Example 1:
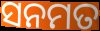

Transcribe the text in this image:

ସନମତ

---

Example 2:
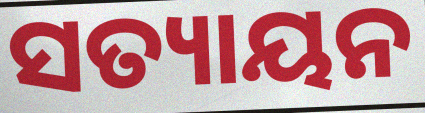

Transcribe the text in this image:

ସତ୍ୟାୟନ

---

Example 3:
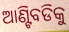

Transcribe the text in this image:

ଆଣ୍ଟିବଡିକୁ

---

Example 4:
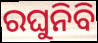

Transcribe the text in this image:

ରଘୁନିବି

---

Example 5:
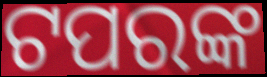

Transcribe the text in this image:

ଟପରଙ୍କ